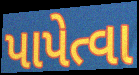
પાપેત્વા